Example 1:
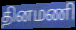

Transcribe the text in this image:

தினமணி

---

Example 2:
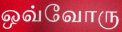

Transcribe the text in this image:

ஒவ்வோரு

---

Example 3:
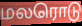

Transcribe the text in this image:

மலரொடு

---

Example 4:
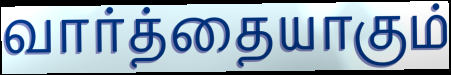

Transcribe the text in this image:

வார்த்தையாகும்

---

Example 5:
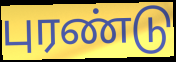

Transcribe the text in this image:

புரண்டு